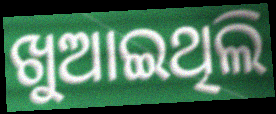
ଖୁଆଇଥିଲି